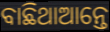
ବାଛିଥାଆନ୍ତେ